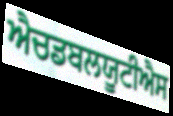
ਐਚਡਬਲਯੂਟੀਐਸ